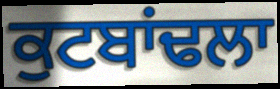
ਕੁਟਬਾਂਢਲਾ